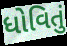
ધોવિતું